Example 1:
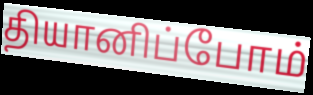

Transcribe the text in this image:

தியானிப்போம்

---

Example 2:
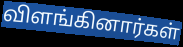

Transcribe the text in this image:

விளங்கினார்கள்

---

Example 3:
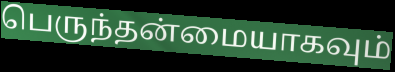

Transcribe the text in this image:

பெருந்தன்மையாகவும்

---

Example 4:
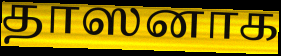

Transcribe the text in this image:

தாஸனாக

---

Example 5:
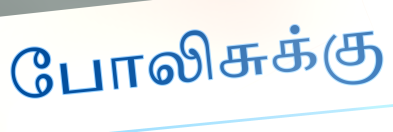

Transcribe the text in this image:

போலிசுக்கு